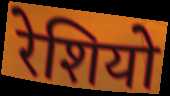
रेशियो